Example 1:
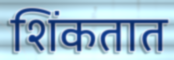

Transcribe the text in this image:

शिंकतात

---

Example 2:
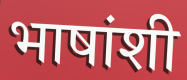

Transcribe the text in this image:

भाषांशी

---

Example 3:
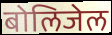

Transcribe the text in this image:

बोलिजेल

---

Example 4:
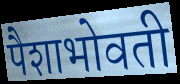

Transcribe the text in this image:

पैशाभोवती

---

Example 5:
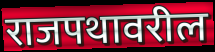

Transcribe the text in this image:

राजपथावरील